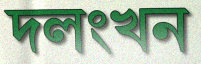
দলংখন